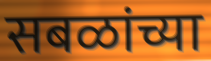
सबळांच्या